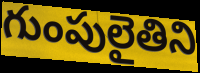
గుంపులైతిని